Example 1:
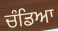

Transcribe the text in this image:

ਚੰਡਿਆ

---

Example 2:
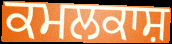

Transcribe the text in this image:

ਕਮਲਕਾਸ਼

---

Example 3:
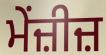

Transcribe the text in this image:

ਮੇਂਜ਼ੀਜ਼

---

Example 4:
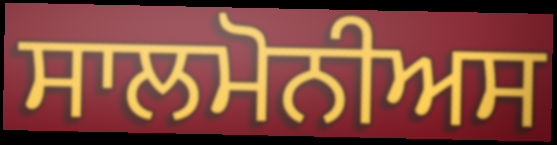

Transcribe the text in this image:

ਸਾਲਮੋਨੀਅਸ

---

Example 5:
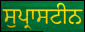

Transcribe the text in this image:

ਸੁਪ੍ਰਾਸਟੀਨ